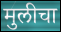
मुलीचा